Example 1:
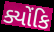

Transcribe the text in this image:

ક્યોંકિ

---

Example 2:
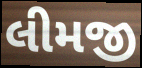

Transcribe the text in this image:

લીમજી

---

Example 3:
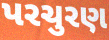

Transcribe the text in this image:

પરચુરણ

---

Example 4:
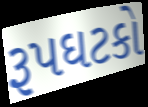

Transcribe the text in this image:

રૂપઘટકો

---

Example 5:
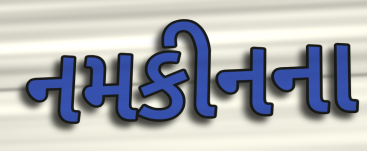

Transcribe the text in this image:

નમકીનના